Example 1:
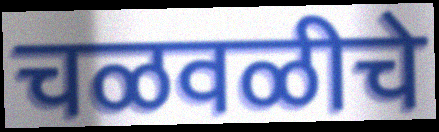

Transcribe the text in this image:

चळवळीचे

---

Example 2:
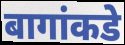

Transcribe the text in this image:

बागांकडे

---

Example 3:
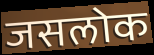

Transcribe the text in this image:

जसलोक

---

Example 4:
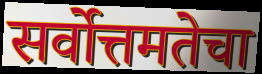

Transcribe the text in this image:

सर्वोत्तमतेचा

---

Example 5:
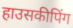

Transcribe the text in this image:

हाउसकीपिंग